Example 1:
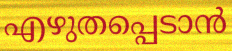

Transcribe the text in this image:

എഴുതപ്പെടാൻ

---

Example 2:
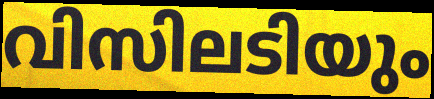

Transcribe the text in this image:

വിസിലടിയും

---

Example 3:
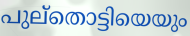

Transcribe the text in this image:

പുല്തൊട്ടിയെയും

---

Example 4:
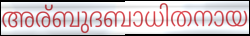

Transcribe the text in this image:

അര്ബുദബാധിതനായ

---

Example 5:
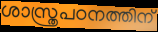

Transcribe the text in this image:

ശാസ്ത്രപഠനത്തിന്